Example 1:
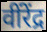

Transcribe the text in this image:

वींरेंद्र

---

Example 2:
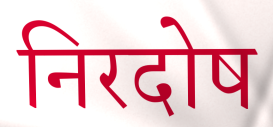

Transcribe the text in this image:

निरदोष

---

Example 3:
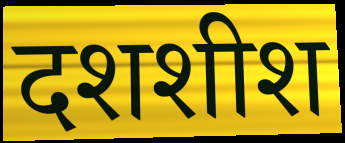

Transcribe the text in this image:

दशशीश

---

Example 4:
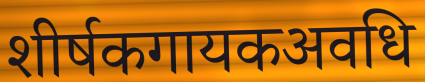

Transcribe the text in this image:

शीर्षकगायकअवधि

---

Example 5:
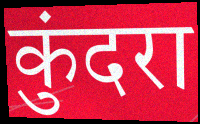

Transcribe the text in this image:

कुंदरा